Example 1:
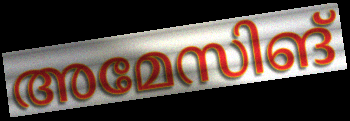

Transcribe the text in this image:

അമേസിങ്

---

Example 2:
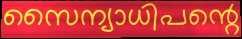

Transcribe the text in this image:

സൈന്യാധിപന്റെ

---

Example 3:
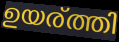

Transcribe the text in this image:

ഉയര്ത്തി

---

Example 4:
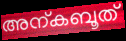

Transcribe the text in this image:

അന്കബൂത്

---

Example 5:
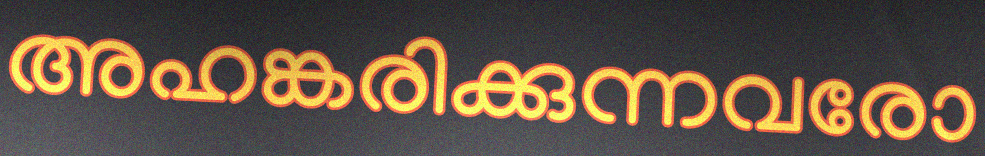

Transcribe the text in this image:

അഹങ്കരിക്കുന്നവരോ